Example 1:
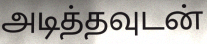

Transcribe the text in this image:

அடித்தவுடன்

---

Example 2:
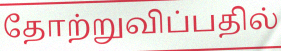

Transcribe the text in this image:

தோற்றுவிப்பதில்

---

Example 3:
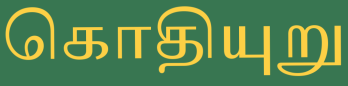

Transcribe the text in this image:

கொதியுறு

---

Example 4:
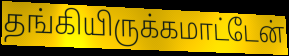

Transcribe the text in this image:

தங்கியிருக்கமாட்டேன்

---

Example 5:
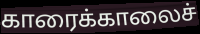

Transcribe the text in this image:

காரைக்காலைச்